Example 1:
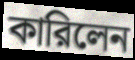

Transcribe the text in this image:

কারিলেন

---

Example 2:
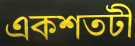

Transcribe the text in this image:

একশতটী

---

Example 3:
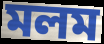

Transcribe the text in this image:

মলম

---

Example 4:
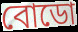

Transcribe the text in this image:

বোডো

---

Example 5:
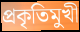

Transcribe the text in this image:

প্রকৃতিমুখী